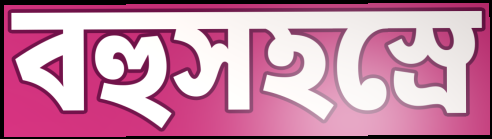
বহুসহস্রে